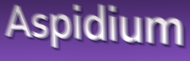
Aspidium